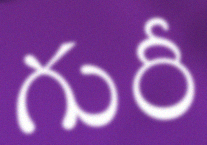
గురీ